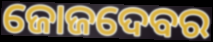
ଜୋଜଦେବର